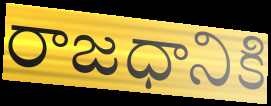
రాజధానికి